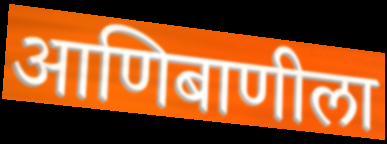
आणिबाणीला